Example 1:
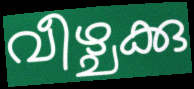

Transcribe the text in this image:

വീഴ്ചക്കു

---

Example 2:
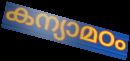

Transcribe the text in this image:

കന്യാമഠം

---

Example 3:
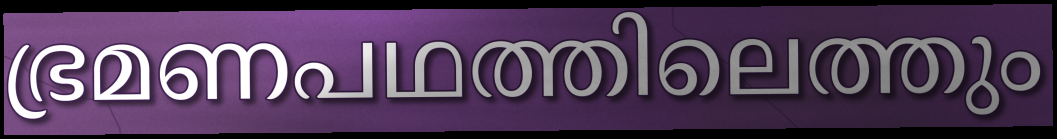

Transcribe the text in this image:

ഭ്രമണപഥത്തിലെത്തും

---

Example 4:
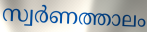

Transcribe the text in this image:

സ്വർണത്താലം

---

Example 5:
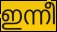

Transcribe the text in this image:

ഇന്നീ